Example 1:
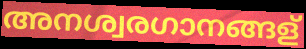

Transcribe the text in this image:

അനശ്വരഗാനങ്ങള്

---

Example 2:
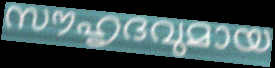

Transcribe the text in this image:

സൗഹൃദവുമായ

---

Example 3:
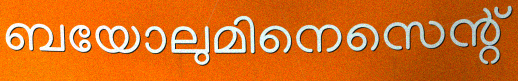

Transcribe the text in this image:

ബയോലുമിനെസെന്റ്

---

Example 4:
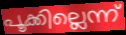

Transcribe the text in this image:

പൂക്കില്ലെന്ന്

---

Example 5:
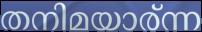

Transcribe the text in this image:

തനിമയാര്ന്ന